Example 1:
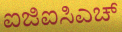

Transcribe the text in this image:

ಐಜಿಐಸಿಎಚ್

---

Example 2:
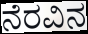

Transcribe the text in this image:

ನೆರವಿನ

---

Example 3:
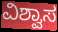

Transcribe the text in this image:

ವಿಶ್ವಾಸ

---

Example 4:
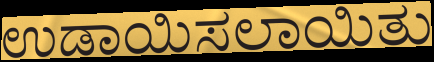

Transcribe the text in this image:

ಉಡಾಯಿಸಲಾಯಿತು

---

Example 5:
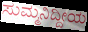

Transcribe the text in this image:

ಸುಮ್ಮನಿದ್ದೀಯ